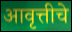
आवृत्तीचे